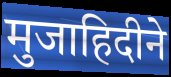
मुजाहिदीने